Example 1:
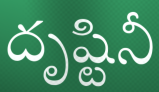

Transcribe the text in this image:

దృష్టినీ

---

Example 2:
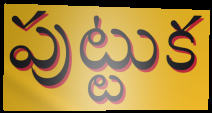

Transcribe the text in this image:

పుట్టుక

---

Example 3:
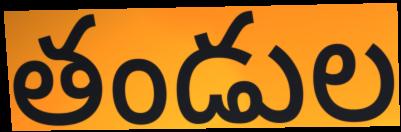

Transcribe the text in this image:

తండుల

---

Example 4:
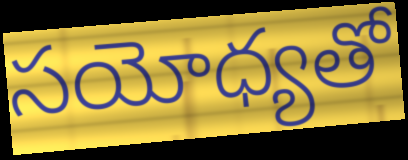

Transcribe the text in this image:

సయోధ్యతో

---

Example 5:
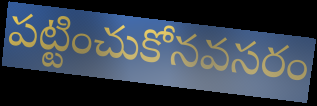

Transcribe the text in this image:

పట్టించుకోనవసరం